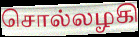
சொல்லழகி